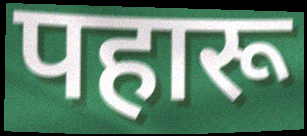
पहारू